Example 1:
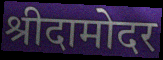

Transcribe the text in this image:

श्रीदामोदर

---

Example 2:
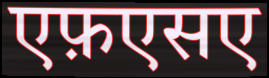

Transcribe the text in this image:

एफ़एसए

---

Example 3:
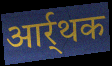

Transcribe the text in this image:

आर्र्थक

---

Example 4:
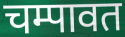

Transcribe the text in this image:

चम्पावत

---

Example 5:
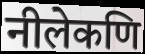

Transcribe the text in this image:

नीलेकणि